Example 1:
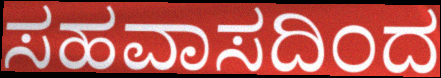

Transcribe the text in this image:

ಸಹವಾಸದಿಂದ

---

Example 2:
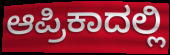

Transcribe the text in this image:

ಆಪ್ರಿಕಾದಲ್ಲಿ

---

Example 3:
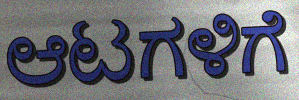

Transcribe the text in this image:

ಆಟಗಳಿಗೆ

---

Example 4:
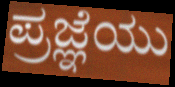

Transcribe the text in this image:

ಪ್ರಜ್ಞೆಯು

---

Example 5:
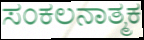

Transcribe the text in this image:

ಸಂಕಲನಾತ್ಮಕ